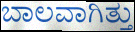
ಬಾಲವಾಗಿತ್ತು